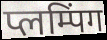
प्लम्पिंग